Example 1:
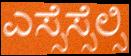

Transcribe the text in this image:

ಎಸ್ಸೆಸ್ಸೆಲ್ಸಿ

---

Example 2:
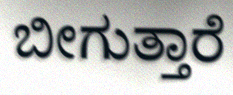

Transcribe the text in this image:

ಬೀಗುತ್ತಾರೆ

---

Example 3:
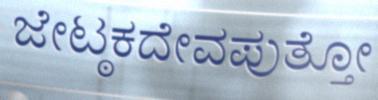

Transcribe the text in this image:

ಜೇಟ್ಠಕದೇವಪುತ್ತೋ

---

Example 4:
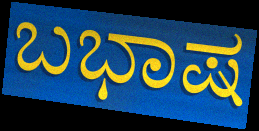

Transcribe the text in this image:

ಬಭಾಷ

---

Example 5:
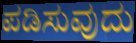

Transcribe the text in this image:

ಪಡಿಸುವುದು